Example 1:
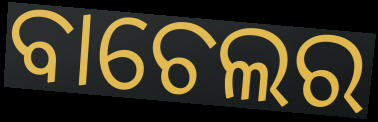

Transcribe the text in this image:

ବାଚେଲର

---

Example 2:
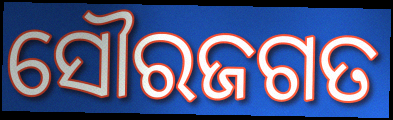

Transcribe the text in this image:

ସୌରଜଗତ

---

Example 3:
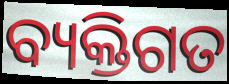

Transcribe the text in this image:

ବ୍ୟକ୍ତିଗତ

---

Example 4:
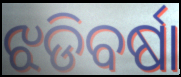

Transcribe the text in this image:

ଝଡିବର୍ଷା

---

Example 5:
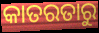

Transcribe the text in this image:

କାତରତାରୁ